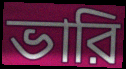
ভারি